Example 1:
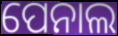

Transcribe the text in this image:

ପେନାଲ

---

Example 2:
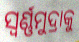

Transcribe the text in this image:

ସ୍ଵର୍ଣ୍ଣମୁଦ୍ରାକୁ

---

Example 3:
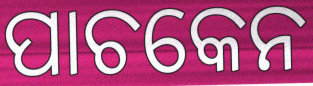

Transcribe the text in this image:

ପାଚକେନ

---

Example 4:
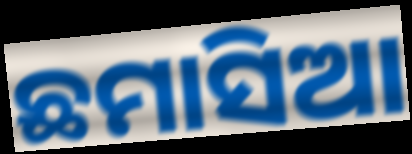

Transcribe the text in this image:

ଛମାସିଆ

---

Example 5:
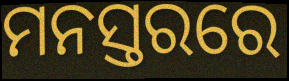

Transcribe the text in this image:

ମନସ୍ତରରେ